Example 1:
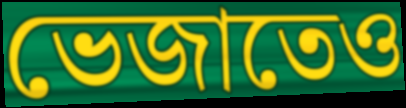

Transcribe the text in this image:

ভেজাতেও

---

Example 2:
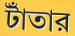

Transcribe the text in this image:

টাঁতার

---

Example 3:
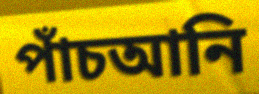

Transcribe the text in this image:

পাঁচআনি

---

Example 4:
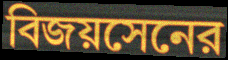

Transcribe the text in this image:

বিজয়সেনের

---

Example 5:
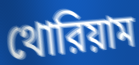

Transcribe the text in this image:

থোরিয়াম